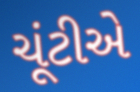
ચૂંટીએ